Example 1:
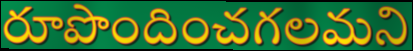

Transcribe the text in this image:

రూపొందించగలమని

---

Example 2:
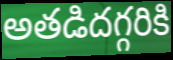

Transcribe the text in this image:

అతడిదగ్గరికి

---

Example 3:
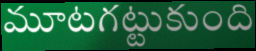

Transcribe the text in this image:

మూటగట్టుకుంది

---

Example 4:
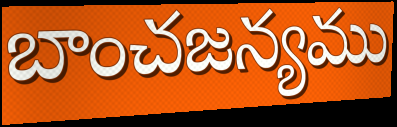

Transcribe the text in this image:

బాంచజన్యము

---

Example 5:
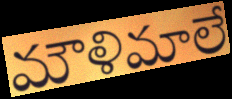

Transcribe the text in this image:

మౌళిమాలే